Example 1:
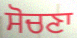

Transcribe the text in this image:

ਸੋਚਣਾ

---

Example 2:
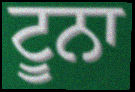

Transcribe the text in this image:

ਟੂਨਾ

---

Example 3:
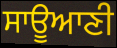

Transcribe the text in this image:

ਸਾਊਆਣੀ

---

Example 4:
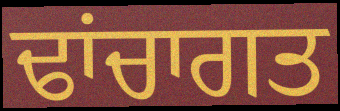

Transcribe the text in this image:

ਢਾਂਚਾਗਤ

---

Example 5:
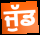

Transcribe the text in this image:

ਜੁੱਡ